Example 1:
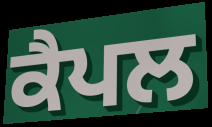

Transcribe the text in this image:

ਕੈਪਲ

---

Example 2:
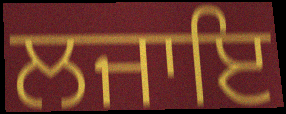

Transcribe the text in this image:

ਲਜਾਇ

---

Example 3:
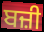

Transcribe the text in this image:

ਬਜ਼ੀ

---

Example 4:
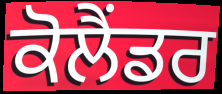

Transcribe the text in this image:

ਕੋਲੈਂਡਰ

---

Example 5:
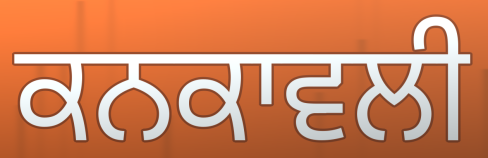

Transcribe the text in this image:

ਕਨਕਾਵਲੀ